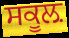
ਸਕੂਲ਼